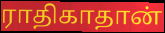
ராதிகாதான்